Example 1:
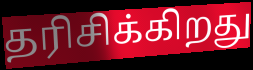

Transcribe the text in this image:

தரிசிக்கிறது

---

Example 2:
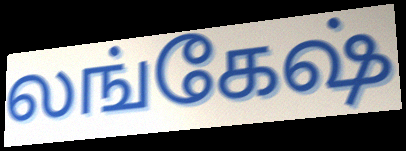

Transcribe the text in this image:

லங்கேஷ்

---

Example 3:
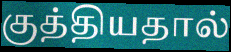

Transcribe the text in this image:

குத்தியதால்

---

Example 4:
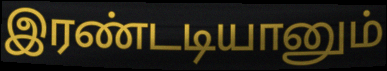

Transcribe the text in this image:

இரண்டடியானும்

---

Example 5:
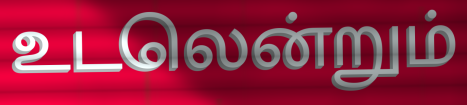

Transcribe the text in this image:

உடலென்றும்